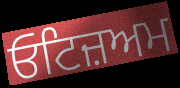
ਓਟਿਜ਼ਅਮ